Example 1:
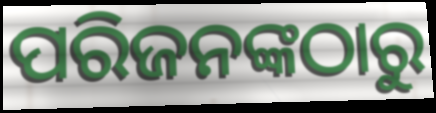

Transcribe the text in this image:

ପରିଜନଙ୍କଠାରୁ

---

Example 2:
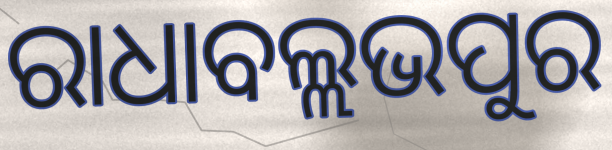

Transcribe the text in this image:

ରାଧାବଲ୍ଲଭପୁର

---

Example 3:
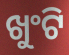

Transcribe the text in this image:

ଖୁଂଟି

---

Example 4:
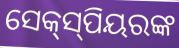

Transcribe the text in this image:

ସେକ୍‌ସ୍‌ପିୟରଙ୍କ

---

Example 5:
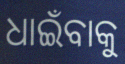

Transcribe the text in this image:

ଧାଇଁବାକୁ